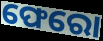
ଫେରୋ